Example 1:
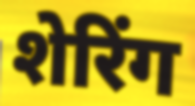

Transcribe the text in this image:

शेरिंग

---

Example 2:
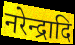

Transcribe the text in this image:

नरेन्द्रादि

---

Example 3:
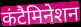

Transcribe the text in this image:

कंटैमिनेशन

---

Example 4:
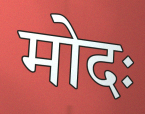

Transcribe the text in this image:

मोदः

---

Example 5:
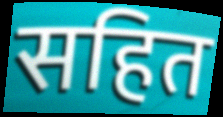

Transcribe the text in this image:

सहित